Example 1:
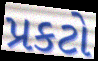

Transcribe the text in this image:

પ્રકટો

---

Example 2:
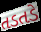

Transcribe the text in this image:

તડતડે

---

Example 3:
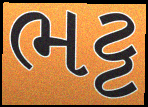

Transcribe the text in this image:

ભટ્ટ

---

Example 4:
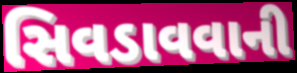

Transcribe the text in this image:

સિવડાવવાની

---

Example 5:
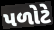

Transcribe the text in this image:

પળોટે